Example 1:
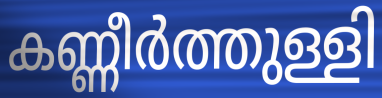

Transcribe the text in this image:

കണ്ണീർത്തുള്ളി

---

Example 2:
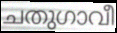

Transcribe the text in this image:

ചതുഗാവീ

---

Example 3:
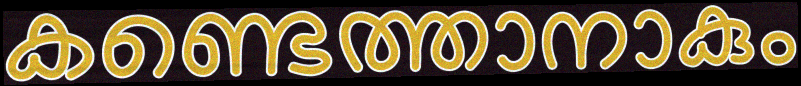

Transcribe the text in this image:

കണ്ടെത്താനാകും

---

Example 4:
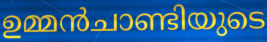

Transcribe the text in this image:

ഉമ്മൻചാണ്ടിയുടെ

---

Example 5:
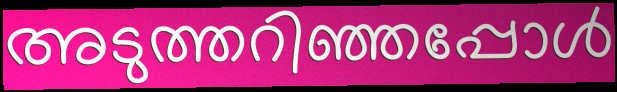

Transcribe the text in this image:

അടുത്തറിഞ്ഞപ്പോൾ